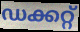
ഡക്കറ്റ്